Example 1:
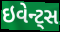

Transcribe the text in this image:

ઇવેન્ટ્સ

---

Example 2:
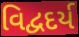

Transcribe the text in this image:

વિદ્વદર્ય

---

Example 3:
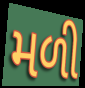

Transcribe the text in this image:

મળી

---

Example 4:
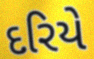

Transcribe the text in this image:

દરિયે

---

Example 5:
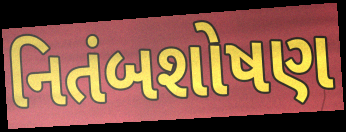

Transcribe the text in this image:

નિતંબશોષણ